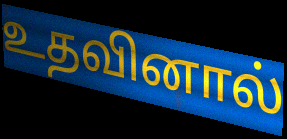
உதவினால்